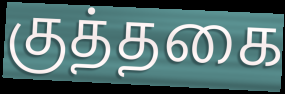
குத்தகை